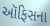
ઑફિસના